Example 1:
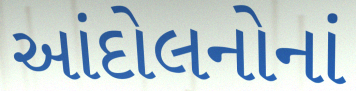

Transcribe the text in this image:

આંદોલનોનાં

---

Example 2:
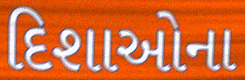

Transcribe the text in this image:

દિશાઓના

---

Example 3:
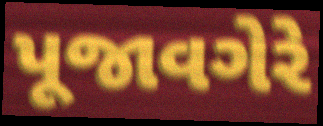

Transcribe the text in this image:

પૂજાવગેરે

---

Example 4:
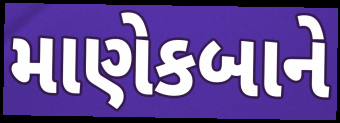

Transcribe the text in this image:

માણેકબાને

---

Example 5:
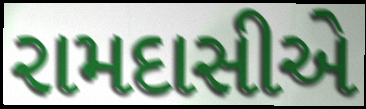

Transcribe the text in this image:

રામદાસીએ